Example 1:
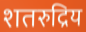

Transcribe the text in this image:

शतरुद्रिय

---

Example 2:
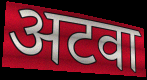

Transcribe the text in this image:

अटवा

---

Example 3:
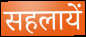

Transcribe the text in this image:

सहलायें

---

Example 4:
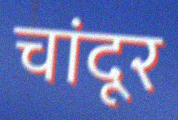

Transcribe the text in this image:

चांदूर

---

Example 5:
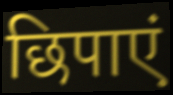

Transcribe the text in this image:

छिपाएं